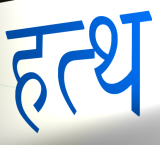
हत्थ